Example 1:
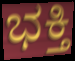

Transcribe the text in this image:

ಭಕ್ತಿ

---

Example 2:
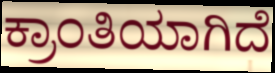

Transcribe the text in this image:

ಕ್ರಾಂತಿಯಾಗಿದೆ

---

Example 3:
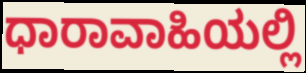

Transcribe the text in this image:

ಧಾರಾವಾಹಿಯಲ್ಲಿ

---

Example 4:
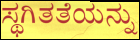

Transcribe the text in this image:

ಸ್ಥಗಿತತೆಯನ್ನು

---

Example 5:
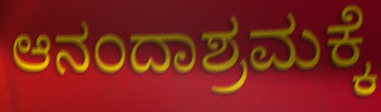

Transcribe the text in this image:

ಆನಂದಾಶ್ರಮಕ್ಕೆ